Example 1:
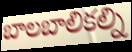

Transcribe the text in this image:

బాలబాలికల్ని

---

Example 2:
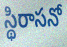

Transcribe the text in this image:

స్థిరాసనో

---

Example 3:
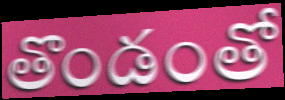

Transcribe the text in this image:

తొండంతో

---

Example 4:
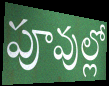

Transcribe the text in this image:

పూవుల్లో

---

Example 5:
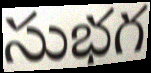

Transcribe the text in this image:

సుభగ